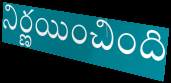
నిర్ణయించింది